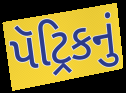
પૅટ્રિકનું